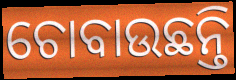
ଚୋବାଉଛନ୍ତି